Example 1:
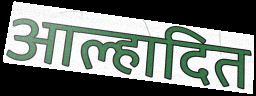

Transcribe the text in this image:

आल्हादित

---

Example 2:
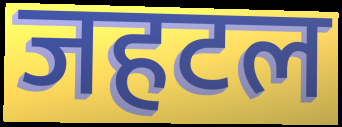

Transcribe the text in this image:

जहटल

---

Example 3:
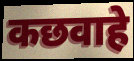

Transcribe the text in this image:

कछवाहे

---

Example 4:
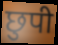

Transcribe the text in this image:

छुपी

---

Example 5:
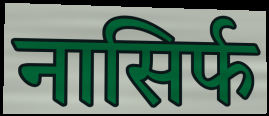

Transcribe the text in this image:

नासिर्फ